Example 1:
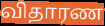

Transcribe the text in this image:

விதாரண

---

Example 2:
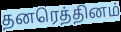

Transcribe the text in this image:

தனரெத்தினம்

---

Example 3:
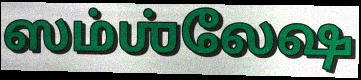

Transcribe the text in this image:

ஸம்ஶ்லேஷ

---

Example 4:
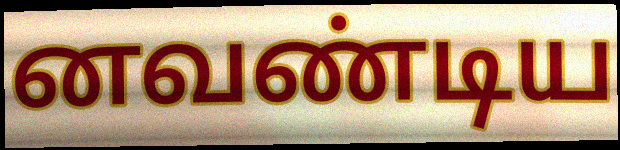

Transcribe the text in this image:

னவண்டிய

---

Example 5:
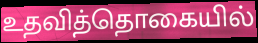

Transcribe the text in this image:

உதவித்தொகையில்